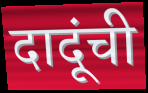
दादूंची